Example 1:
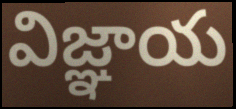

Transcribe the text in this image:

విజ్ఞాయ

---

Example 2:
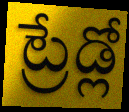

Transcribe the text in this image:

ట్రేడ్లో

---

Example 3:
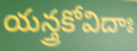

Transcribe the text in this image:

యన్త్రకోవిదాః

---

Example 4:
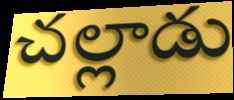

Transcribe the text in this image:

చల్లాడు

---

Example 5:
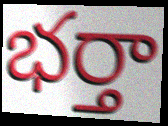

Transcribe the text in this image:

భర్తా